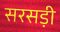
सरसड़ी